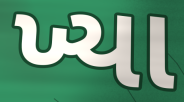
ખ્યા